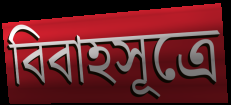
বিবাহসূত্রে